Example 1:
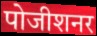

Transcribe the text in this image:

पोजीशनर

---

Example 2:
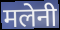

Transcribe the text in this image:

मलेनी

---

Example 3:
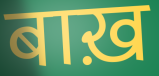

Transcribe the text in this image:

बाख़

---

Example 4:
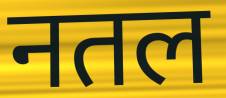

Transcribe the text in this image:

नतल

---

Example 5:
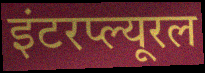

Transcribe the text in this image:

इंटरप्ल्यूरल